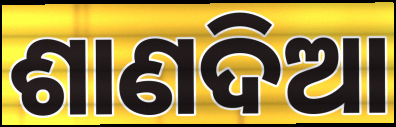
ଶାଣଦିଆ